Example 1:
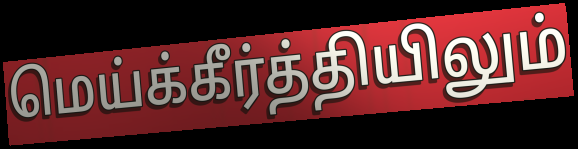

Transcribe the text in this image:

மெய்க்கீர்த்தியிலும்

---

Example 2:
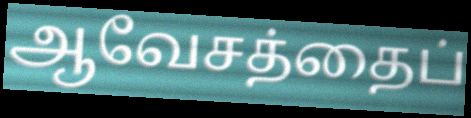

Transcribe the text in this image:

ஆவேசத்தைப்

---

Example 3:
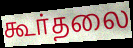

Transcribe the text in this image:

கூர்தலை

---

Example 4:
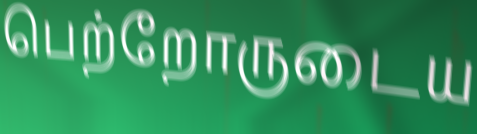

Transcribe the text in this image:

பெற்றோருடைய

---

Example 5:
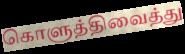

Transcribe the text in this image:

கொளுத்திவைத்து